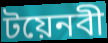
টয়েনবী